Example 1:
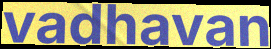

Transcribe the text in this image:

vadhavan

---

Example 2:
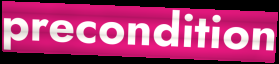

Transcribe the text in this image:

precondition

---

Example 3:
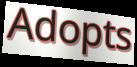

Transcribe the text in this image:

Adopts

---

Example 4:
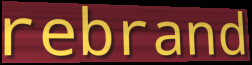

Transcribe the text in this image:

rebrand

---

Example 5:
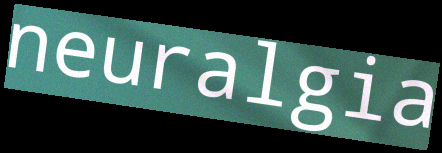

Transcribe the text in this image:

neuralgia